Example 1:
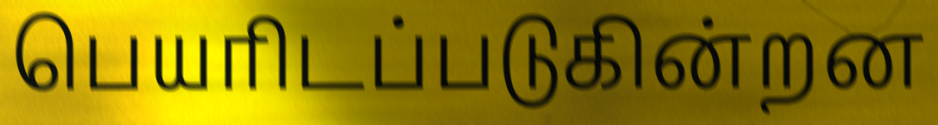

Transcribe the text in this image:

பெயரிடப்படுகின்றன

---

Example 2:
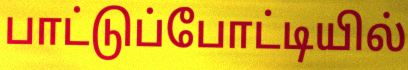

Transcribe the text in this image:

பாட்டுப்போட்டியில்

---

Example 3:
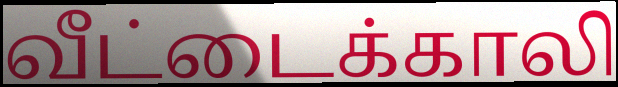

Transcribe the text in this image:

வீட்டைக்காலி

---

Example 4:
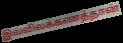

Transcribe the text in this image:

இவ்விலக்கணத்தான்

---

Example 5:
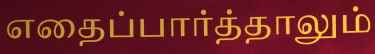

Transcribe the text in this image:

எதைப்பார்த்தாலும்